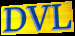
DVL